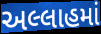
અલ્લાહમાં